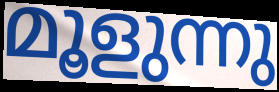
മൂളുന്നു